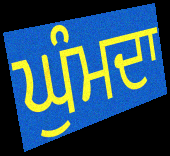
ਘੁੰਮਦਾ